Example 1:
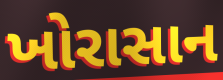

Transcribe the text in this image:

ખોરાસાન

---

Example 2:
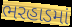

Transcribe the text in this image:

ભરહાડમાં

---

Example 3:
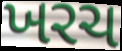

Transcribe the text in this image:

ખરચ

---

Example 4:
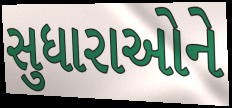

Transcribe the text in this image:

સુધારાઓને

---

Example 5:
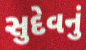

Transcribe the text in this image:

સુદેવનું